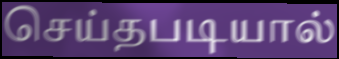
செய்தபடியால்